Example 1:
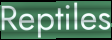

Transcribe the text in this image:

Reptiles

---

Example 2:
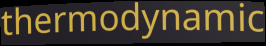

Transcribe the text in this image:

thermodynamic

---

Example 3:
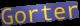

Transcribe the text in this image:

Gorter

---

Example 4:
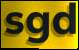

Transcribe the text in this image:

sgd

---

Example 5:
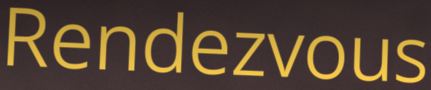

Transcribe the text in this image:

Rendezvous